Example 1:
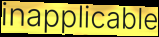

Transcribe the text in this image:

inapplicable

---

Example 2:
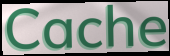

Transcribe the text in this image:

Cache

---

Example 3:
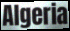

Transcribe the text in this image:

Algeria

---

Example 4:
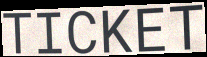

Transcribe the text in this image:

TICKET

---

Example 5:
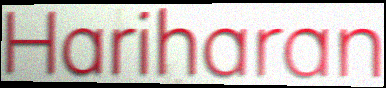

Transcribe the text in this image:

Hariharan